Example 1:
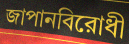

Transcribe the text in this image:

জাপানবিরোধী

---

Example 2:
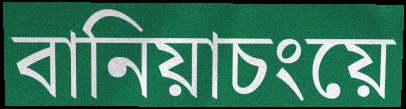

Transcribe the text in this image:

বানিয়াচংয়ে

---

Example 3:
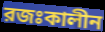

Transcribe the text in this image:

রজঃকালীন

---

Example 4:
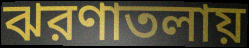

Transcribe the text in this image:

ঝরণাতলায়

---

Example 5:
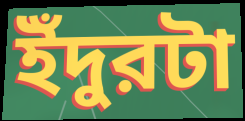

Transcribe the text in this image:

ইঁদুরটা